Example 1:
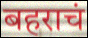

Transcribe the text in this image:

बहराचं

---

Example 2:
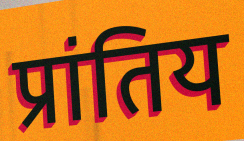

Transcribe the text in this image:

प्रांतिय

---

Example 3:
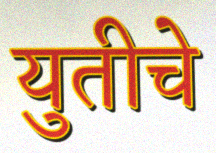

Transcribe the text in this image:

युतीचे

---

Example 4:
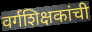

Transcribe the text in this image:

वर्गशिक्षकांची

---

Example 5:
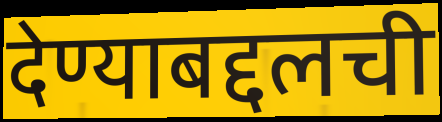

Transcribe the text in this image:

देण्याबद्दलची